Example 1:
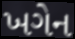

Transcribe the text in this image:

ખગેન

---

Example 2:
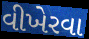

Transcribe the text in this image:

વીખેરવા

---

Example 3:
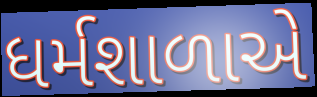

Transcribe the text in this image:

ધર્મશાળાએ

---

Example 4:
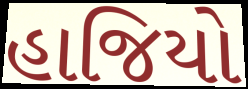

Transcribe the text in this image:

હાજિયો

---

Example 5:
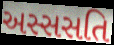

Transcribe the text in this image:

અસ્સસતિ